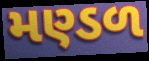
મણ્ડળ